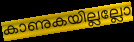
കാണുകയില്ലല്ലോ